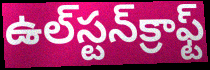
ఉల్‌స్టన్‌క్రాఫ్ట్